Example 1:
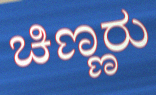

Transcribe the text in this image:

ಚಿಣ್ಣರು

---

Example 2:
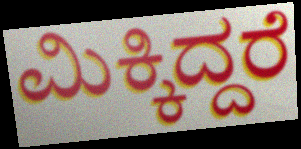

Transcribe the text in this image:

ಮಿಕ್ಕಿದ್ದರೆ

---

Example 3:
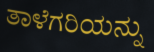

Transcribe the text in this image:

ತಾಳೆಗರಿಯನ್ನು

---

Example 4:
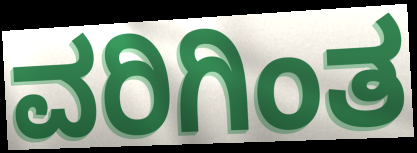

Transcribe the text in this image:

ವರಿಗಿಂತ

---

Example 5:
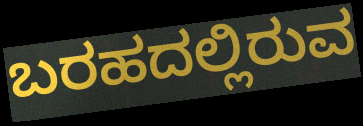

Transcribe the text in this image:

ಬರಹದಲ್ಲಿರುವ